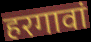
हरगावां